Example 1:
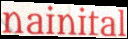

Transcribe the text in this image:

nainital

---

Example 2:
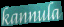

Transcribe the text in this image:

kannula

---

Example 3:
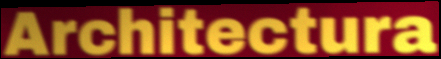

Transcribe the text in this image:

Architectura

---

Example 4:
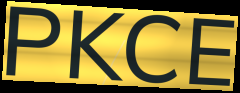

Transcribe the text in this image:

PKCE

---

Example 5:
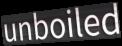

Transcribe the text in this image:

unboiled